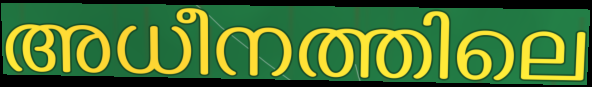
അധീനത്തിലെ